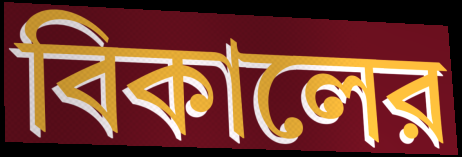
বিকালের